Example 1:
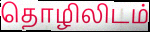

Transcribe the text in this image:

தொழிலிடம்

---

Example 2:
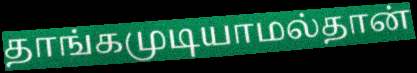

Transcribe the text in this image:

தாங்கமுடியாமல்தான்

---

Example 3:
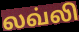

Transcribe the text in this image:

லவ்லி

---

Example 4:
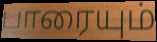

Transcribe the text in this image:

பாரையும்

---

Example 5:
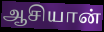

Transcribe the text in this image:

ஆசியான்